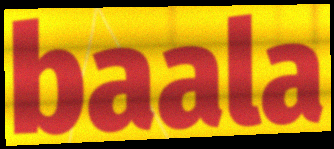
baala